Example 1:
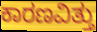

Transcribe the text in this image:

ಕಾರಣವಿತ್ತು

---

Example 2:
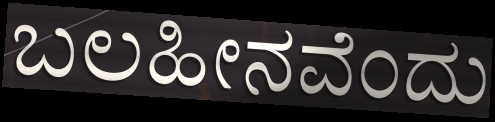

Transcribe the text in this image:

ಬಲಹೀನವೆಂದು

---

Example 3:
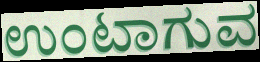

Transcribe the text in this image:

ಉಂಟಾಗುವ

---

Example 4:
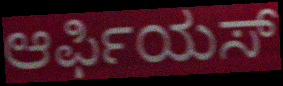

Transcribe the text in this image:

ಆರ್ಫಿಯಸ್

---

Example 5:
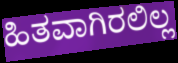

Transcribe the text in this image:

ಹಿತವಾಗಿರಲಿಲ್ಲ